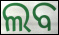
ଲବ